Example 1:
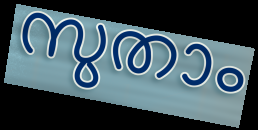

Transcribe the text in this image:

സുതാം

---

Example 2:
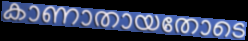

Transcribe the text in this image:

കാണാതായതോടെ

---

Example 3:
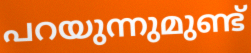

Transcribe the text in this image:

പറയുന്നുമുണ്ട്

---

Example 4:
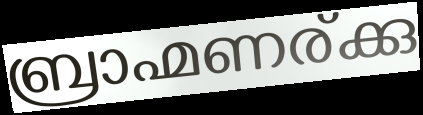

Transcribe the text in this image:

ബ്രാഹ്മണര്ക്കു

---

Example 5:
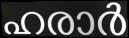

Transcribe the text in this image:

ഹരാർ